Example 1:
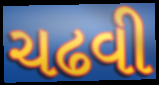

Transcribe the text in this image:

ચઢવી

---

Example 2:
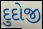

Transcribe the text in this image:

દુદોજી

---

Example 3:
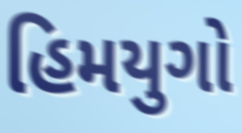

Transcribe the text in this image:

હિમયુગો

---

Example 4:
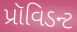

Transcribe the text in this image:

પ્રૉવિડન્ટ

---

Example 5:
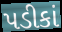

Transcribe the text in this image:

પડીકાં